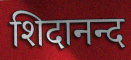
शिदानन्द